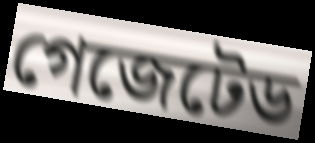
গেজেটেড